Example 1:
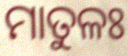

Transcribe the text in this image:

ମାତୁଳଃ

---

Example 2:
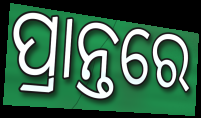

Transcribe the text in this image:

ପ୍ରାନ୍ତରେ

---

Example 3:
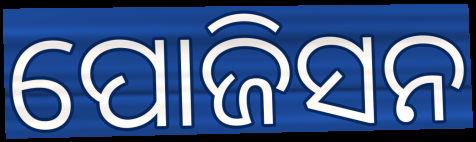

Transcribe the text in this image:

ପୋଜିସନ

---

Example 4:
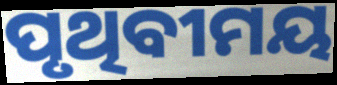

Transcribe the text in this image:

ପୃଥିବୀମୟ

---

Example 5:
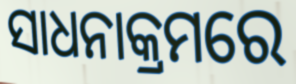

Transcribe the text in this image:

ସାଧନାକ୍ରମରେ